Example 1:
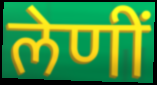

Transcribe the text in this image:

लेणीं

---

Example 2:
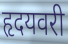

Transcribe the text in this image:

हृदयवरी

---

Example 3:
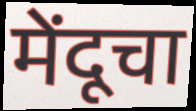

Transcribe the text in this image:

मेंदूचा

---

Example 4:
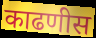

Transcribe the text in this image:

काढणीस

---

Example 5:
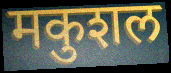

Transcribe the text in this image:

मकुशल